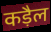
कड़ैल